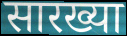
सारख्या